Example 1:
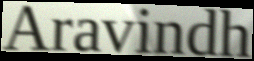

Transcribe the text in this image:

Aravindh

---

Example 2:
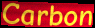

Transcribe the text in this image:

Carbon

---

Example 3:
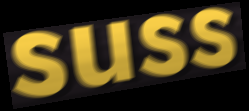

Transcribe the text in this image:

suss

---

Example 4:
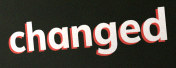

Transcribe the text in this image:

changed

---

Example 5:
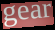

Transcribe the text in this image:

gear